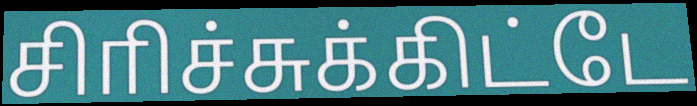
சிரிச்சுக்கிட்டே